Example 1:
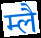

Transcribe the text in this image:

म्लै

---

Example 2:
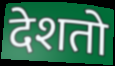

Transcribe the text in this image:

देशतो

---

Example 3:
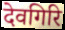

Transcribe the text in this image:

देवगिरि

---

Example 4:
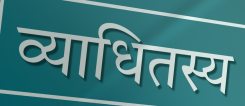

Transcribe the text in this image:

व्याधितस्य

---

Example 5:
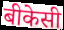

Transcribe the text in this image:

बीकेसी